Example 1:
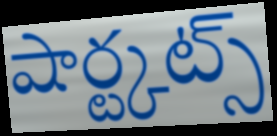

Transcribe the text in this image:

షార్ట్కట్స్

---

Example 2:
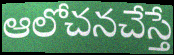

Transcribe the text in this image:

ఆలోచనచేస్తే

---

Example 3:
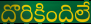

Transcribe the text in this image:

దొరికిందిలే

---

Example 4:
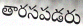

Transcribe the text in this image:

తారసపడరు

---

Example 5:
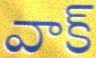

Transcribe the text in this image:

వాక్